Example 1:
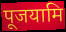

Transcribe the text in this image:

पूजयामि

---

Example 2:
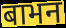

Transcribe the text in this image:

बाभन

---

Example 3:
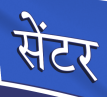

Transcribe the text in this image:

सेंटर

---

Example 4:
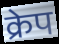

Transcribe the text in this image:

क्रेप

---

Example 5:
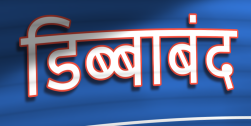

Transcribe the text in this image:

डिब्बाबंद